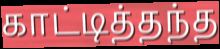
காட்டித்தந்த